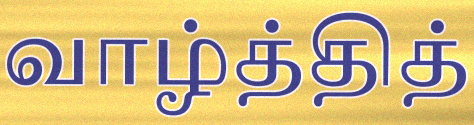
வாழ்த்தித்